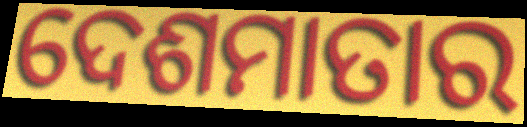
ଦେଶମାତାର